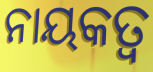
ନାୟକତ୍ୱ